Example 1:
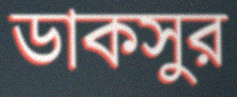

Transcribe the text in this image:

ডাকসুর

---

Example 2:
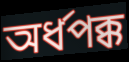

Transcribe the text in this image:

অর্ধপক্ক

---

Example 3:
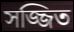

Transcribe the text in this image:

সজ্জিত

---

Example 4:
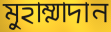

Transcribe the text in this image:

মুহাম্মাদান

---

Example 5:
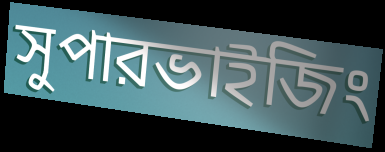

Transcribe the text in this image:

সুপারভাইজিং